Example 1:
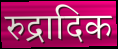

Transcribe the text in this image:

रुद्रादिक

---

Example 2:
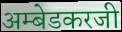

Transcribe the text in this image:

अम्बेडकरजी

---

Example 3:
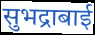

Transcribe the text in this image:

सुभद्राबाई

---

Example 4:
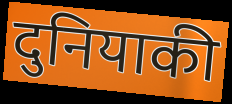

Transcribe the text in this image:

दुनियाकी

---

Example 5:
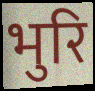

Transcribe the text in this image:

भुरि